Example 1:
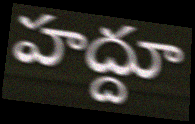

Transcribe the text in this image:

హద్దూ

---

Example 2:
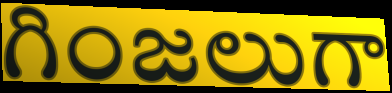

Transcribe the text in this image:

గింజలుగా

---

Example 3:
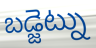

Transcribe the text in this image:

బడ్జెట్ను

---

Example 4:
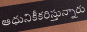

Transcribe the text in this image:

ఆధునికీకరిస్తున్నారు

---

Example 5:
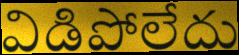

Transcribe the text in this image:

విడిపోలేదు